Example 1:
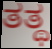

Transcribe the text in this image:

ತತ್ಥ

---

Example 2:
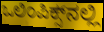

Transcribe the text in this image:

ಒಲಿಂಪಿಕ್ಸ್‌ನಲ್ಲಿ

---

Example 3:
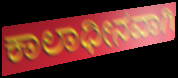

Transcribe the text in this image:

ಕಾಲಾಧೀನವಾಗಿ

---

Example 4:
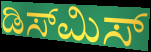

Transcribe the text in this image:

ಡಿಸ್‌ಮಿಸ್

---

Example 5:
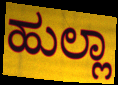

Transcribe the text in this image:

ಹುಲ್ಲಾ